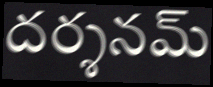
దర్శనమ్